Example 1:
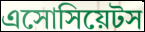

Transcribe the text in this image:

এসোসিয়েটস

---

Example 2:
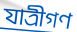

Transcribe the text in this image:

যাত্রীগণ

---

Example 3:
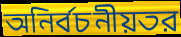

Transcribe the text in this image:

অনির্বচনীয়তর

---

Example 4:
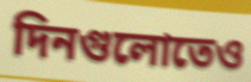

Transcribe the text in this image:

দিনগুলোতেও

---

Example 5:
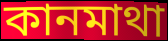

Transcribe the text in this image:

কানমাথা